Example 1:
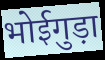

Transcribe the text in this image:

भोईगुड़ा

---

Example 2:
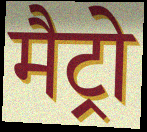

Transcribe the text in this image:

मैट्रो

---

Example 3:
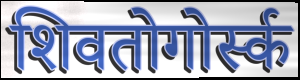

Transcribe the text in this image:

शिवतोगोर्स्क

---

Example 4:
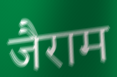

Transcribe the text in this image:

जैराम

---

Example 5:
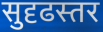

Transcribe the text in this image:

सुदृढस्तर